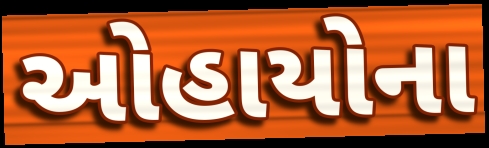
ઓહાયોના